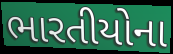
ભારતીયોના